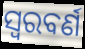
ସ୍ଵରବର୍ଣ